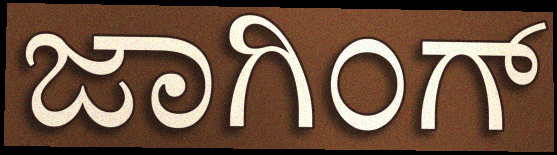
ಜಾಗಿಂಗ್